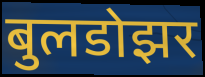
बुलडोझर